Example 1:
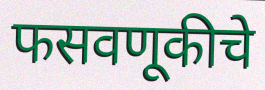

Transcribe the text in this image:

फसवणूकीचे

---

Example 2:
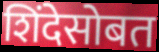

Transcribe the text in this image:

शिंदेसोबत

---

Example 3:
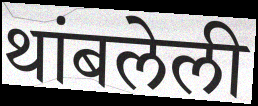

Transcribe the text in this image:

थांबलेली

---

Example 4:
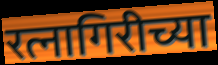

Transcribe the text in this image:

रत्नागिरीच्या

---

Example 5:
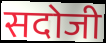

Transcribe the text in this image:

सदोजी